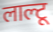
लाल्‍टू